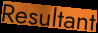
Resultant